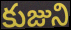
కుజుని